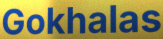
Gokhalas